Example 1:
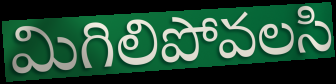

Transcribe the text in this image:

మిగిలిపోవలసి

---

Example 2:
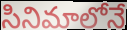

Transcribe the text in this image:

సినిమాలోనే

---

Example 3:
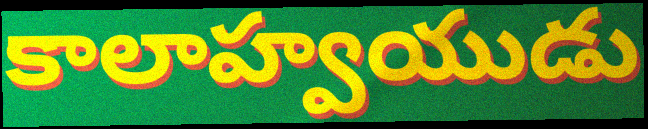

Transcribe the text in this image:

కాలాహ్వయుడు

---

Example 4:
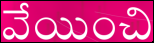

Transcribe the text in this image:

వేయించి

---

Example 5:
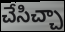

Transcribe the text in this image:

చేసిచ్చా